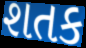
શતક